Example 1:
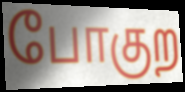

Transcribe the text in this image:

போகுற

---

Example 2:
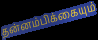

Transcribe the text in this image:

தன்னம்பிக்கையும்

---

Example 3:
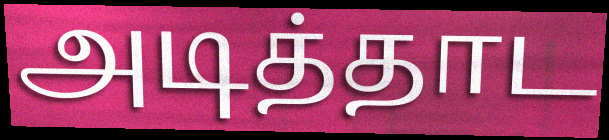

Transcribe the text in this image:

அடித்தாட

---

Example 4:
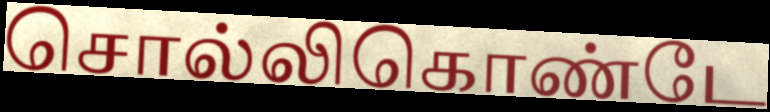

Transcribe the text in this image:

சொல்லிகொண்டே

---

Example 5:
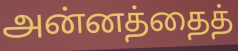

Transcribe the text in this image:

அன்னத்தைத்